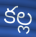
కల్ల